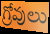
గ్రోవులు